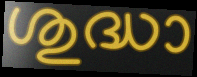
ശുദ്ധാ